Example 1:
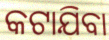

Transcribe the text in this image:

କଟାଯିବା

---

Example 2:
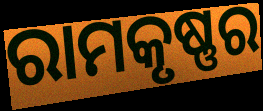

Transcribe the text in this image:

ରାମକୃଷ୍ଣର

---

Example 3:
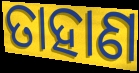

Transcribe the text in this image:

ତାହାଣ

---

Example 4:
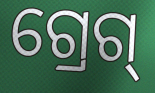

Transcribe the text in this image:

ଗ୍ରେଗ୍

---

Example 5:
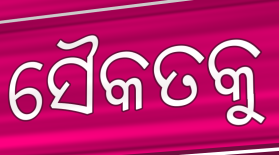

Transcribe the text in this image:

ସୈକତକୁ